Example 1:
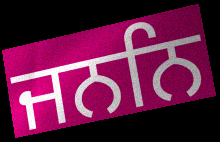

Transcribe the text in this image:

ਜਨਨਿ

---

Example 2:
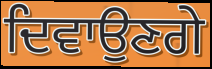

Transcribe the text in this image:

ਦਿਵਾਉਣਗੇ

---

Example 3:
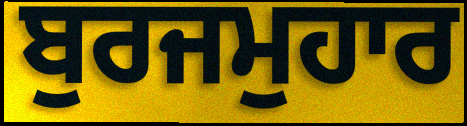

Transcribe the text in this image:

ਬੁਰਜਮੁਹਾਰ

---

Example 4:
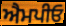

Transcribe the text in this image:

ਐਮਪੀਓ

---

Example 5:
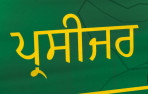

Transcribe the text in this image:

ਪ੍ਰਸੀਜਰ